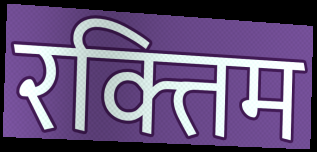
रक्तिम